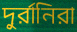
দুর্রানিরা